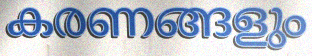
കരണങ്ങളും